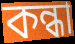
কন্ধা